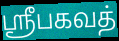
ஸ்ரீபகவத்